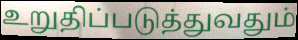
உறுதிப்படுத்துவதும்